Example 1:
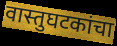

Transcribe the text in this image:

वास्तुघटकांचा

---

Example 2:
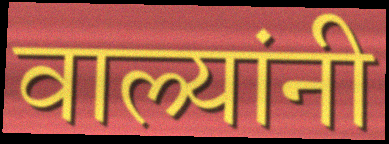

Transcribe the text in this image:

वाल्यांनी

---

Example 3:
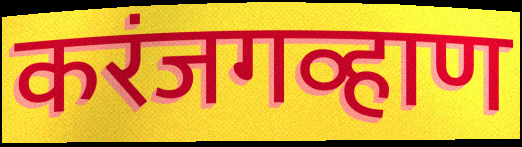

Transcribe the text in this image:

करंजगव्हाण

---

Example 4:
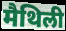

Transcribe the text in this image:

मैथिली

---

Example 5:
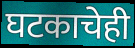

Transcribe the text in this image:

घटकाचेही